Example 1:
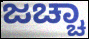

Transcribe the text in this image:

ಜಚ್ಚಾ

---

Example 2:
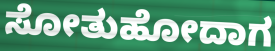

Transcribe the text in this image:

ಸೋತುಹೋದಾಗ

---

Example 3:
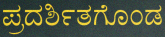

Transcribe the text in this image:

ಪ್ರದರ್ಶಿತಗೊಂಡ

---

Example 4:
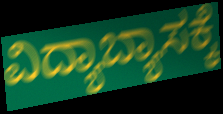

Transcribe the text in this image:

ವಿದ್ಯಾಬ್ಯಾಸಕ್ಕೆ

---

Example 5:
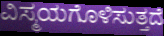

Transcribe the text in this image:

ವಿಸ್ಮಯಗೊಳಿಸುತ್ತದೆ